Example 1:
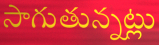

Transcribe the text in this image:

సాగుతున్నట్లు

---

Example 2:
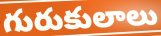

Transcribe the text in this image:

గురుకులాలు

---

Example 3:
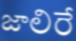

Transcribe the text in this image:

జాలిరే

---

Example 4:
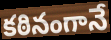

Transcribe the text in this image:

కఠినంగానే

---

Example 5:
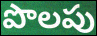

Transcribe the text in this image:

పొలపు